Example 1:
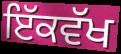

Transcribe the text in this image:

ਇੱਕਵੱਖ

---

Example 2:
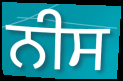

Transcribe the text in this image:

ਨੀਸ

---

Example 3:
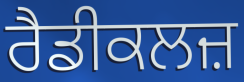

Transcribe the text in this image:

ਰੈਡੀਕਲਜ਼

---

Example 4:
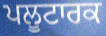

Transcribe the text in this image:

ਪਲੂਟਾਰਕ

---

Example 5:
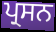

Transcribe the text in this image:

ਪ੍ਰਸਨ